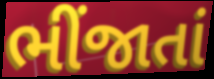
ભીંજાતાં